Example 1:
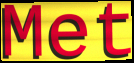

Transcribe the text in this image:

Met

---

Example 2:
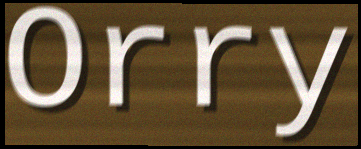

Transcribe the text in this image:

Orry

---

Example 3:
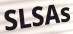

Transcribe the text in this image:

SLSAs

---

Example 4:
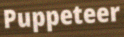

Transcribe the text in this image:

Puppeteer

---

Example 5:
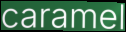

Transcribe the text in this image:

caramel